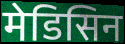
मेडिसिन